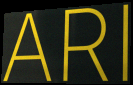
ARI